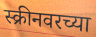
स्क्रीनवरच्या